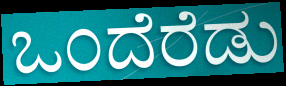
ಒಂದೆರೆಡು